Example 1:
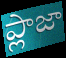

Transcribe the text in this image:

ప్లాజా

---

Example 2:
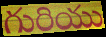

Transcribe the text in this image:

గురియు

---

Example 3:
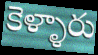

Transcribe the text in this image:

కెళ్ళారు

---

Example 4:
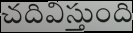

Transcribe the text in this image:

చదివిస్తుంది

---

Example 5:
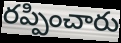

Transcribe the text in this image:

రప్పించారు